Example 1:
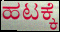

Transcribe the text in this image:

ಹಟಕ್ಕೆ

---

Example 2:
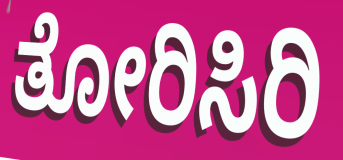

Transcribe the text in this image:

ತೋರಿಸಿರಿ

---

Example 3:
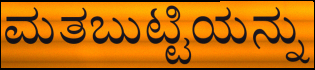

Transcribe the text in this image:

ಮತಬುಟ್ಟಿಯನ್ನು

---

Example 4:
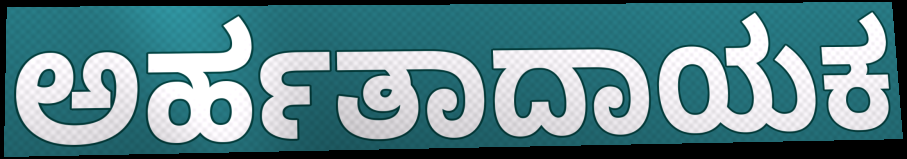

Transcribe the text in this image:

ಅರ್ಹತಾದಾಯಕ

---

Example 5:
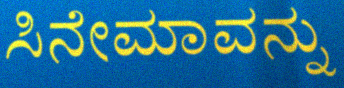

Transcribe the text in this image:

ಸಿನೇಮಾವನ್ನು